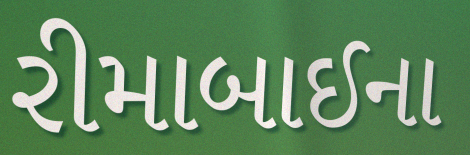
રીમાબાઈના